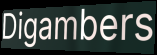
Digambers